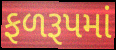
ફળરૂપમાં